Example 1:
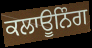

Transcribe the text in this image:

ਕਲਾਊਨਿੰਗ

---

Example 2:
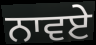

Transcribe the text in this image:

ਨਾਵਏ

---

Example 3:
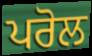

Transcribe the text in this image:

ਪਰੋਲ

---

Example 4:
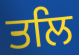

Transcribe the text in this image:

ਤਲਿ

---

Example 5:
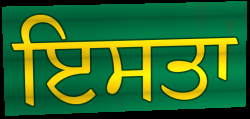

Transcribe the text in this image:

ਇਸਤਾ